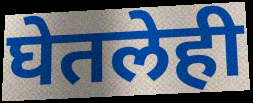
घेतलेही